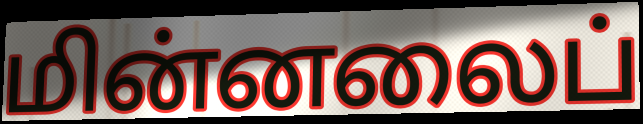
மின்னலைப்